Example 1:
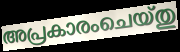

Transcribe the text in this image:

അപ്രകാരംചെയ്തു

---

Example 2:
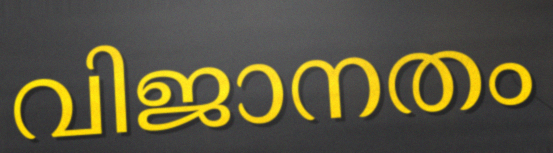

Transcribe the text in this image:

വിജാനതം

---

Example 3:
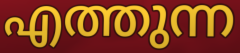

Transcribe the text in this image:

എത്തുന്ന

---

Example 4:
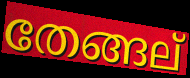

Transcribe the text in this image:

തേങ്ങല്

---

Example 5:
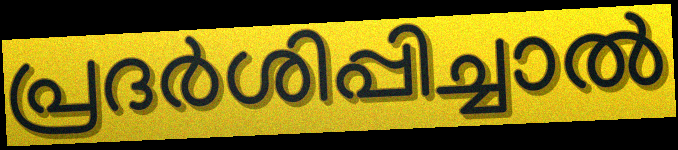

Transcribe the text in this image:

പ്രദർശിപ്പിച്ചാൽ